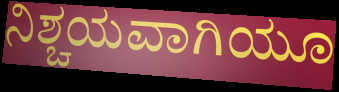
ನಿಶ್ಚಯವಾಗಿಯೂ